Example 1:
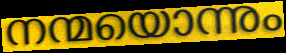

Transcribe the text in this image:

നന്മയൊന്നും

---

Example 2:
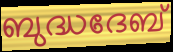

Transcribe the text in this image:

ബുദ്ധദേബ്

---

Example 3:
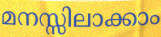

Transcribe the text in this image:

മനസ്സിലാക്കാം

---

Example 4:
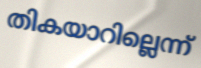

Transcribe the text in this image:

തികയാറില്ലെന്ന്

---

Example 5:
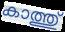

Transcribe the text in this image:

കാത്തു്